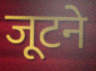
जूटने